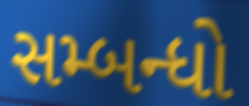
સમ્બન્ધો